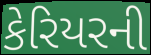
કેરિયરની